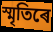
স্মৃতিৰে